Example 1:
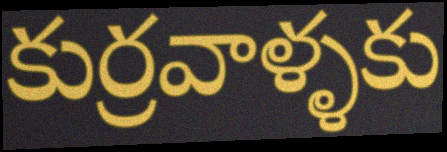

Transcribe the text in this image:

కుర్రవాళ్ళకు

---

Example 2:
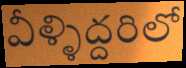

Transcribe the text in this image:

వీళ్ళిద్దరిలో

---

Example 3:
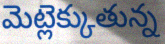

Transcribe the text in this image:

మెట్లెక్కుతున్న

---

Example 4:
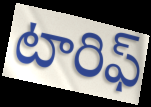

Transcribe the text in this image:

టారిఫ్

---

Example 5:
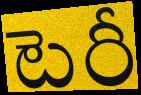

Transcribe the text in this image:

టెరీ